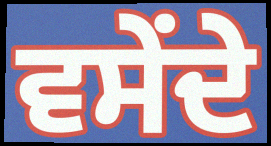
ਵਸੇਂਦੇ